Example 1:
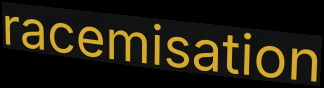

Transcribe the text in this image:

racemisation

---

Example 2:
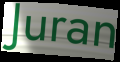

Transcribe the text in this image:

Juran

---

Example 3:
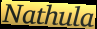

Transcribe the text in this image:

Nathula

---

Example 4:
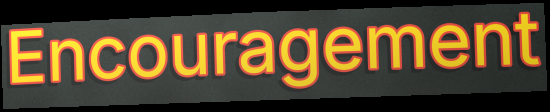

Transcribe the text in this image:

Encouragement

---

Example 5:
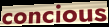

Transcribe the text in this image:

concious